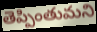
తెప్పింతుమని